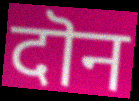
दॊन